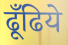
ढूँढिये